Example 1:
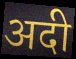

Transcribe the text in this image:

अदी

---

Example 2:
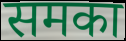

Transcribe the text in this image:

समका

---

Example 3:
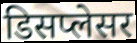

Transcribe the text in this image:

डिसप्लेसर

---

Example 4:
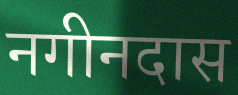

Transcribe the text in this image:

नगीनदास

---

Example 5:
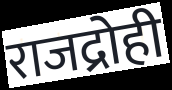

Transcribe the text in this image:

राजद्रोही